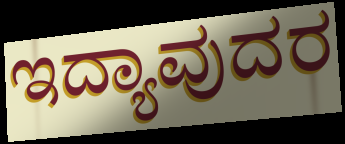
ಇದ್ಯಾವುದರ